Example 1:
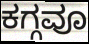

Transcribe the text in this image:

ಕಗ್ಗವೂ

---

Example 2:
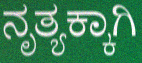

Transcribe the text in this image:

ನೃತ್ಯಕ್ಕಾಗಿ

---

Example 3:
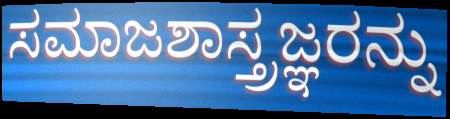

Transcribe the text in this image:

ಸಮಾಜಶಾಸ್ತ್ರಜ್ಞರನ್ನು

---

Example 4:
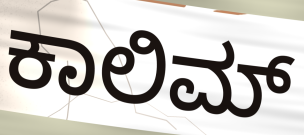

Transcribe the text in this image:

ಕಾಲಿಮ್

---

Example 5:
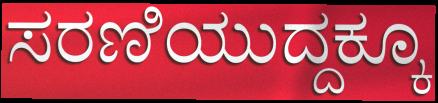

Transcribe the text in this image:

ಸರಣಿಯುದ್ದಕ್ಕೂ